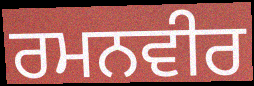
ਰਮਨਵੀਰ